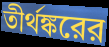
তীর্থঙ্করের